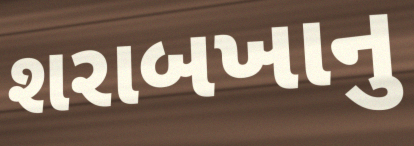
શરાબખાનુ